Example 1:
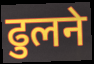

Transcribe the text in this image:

ढुलने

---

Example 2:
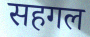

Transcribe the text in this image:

सहगल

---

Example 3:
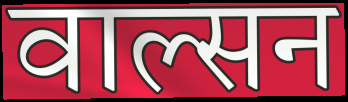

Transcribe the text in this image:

वाल्सन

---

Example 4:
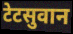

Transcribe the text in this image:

टेटसुवान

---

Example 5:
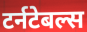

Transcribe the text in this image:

टर्नटेबल्स